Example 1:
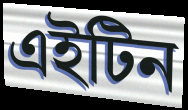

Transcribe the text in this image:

এইটিন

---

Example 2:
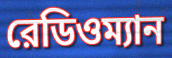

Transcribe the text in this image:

রেডিওম্যান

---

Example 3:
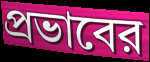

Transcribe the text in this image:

প্রভাবের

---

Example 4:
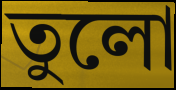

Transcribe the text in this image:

তুলো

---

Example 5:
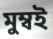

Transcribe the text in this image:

মুম্বই